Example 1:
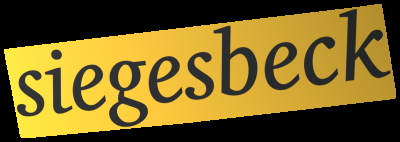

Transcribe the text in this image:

siegesbeck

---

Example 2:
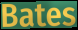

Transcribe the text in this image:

Bates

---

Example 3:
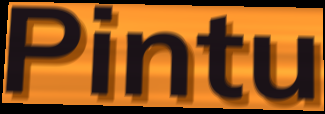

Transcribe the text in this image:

Pintu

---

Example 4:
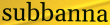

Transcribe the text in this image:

subbanna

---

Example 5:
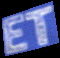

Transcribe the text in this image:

ET